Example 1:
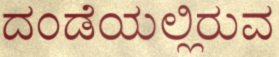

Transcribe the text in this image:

ದಂಡೆಯಲ್ಲಿರುವ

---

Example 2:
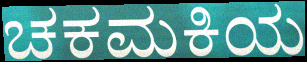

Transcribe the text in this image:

ಚಕಮಕಿಯ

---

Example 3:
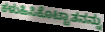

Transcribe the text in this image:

ಕಳುಹಿಸಿಕೊಟ್ಟಾತನನ್ನು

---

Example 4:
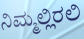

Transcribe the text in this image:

ನಿಮ್ಮಲ್ಲಿರಲಿ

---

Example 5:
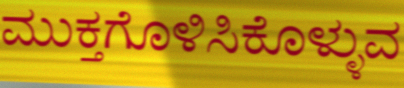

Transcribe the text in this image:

ಮುಕ್ತಗೊಳಿಸಿಕೊಳ್ಳುವ